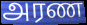
அரண